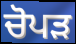
ਚੋਪੜ